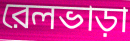
রেলভাড়া